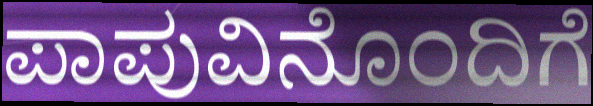
ಪಾಪುವಿನೊಂದಿಗೆ